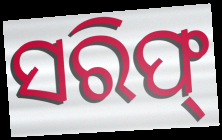
ସରିଫ୍